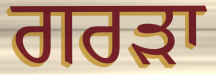
ਗਰੜਾ